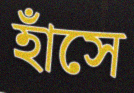
হাঁসে